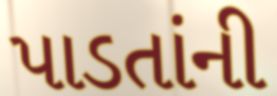
પાડતાંની